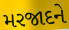
મરજાદને